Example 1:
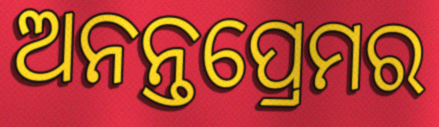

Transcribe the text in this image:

ଅନନ୍ତପ୍ରେମର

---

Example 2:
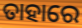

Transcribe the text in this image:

ତାହାରେ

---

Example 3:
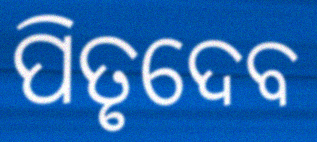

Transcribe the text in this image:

ପିତୃଦେବ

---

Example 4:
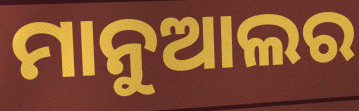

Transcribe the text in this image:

ମାନୁଆଲର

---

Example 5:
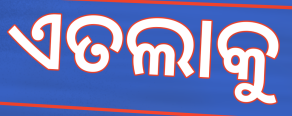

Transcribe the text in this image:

ଏତଲାକୁ